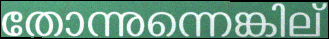
തോന്നുന്നെങ്കില്